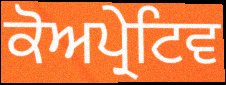
ਕੋਅਪ੍ਰੇਟਿਵ